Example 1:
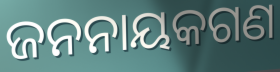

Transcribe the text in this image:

ଜନନାୟକଗଣ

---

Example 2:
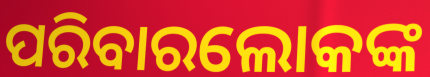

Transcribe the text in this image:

ପରିବାରଲୋକଙ୍କ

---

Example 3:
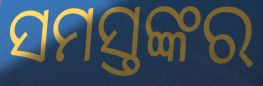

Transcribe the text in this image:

ସମସ୍ତଙ୍କର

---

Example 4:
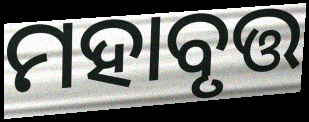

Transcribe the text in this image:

ମହାବୃତ୍ତ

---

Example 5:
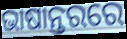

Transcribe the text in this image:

ଭାଷାନ୍ତରରେ